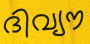
ദിവ്യൗ